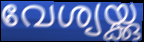
വേശ്യയ്ക്കു